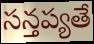
సన్తప్యతే